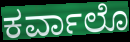
ಕರ್ವಾಲೊ